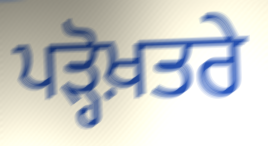
ਪੜ੍ਹੋਖ਼ਤਰੇ